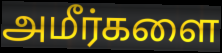
அமீர்களை